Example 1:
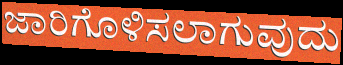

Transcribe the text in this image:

ಜಾರಿಗೊಳಿಸಲಾಗುವುದು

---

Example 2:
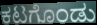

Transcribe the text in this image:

ಕಟಗೊಂಡು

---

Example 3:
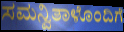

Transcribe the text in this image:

ಸಮನ್ವಿತಾಳೊಂದಿಗೆ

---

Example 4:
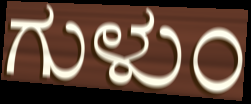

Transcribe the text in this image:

ಗುಳುಂ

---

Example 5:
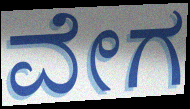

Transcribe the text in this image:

ವೇಗ